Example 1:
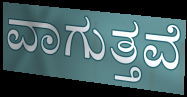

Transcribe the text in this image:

ವಾಗುತ್ತವೆ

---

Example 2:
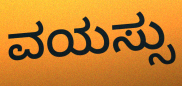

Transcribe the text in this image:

ವಯಸ್ಸು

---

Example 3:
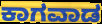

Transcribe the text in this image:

ಕಾಗವಾಡ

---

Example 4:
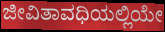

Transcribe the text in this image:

ಜೀವಿತಾವಧಿಯಲ್ಲಿಯೇ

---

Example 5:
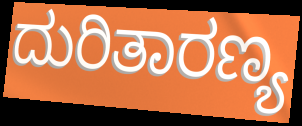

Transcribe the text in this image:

ದುರಿತಾರಣ್ಯ